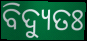
ବିଦ୍ୟୁତଃ